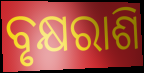
ବୃକ୍ଷରାଶି